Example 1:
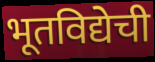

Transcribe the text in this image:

भूतविद्येची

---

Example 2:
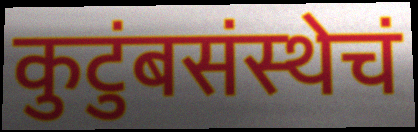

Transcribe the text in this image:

कुटुंबसंस्थेचं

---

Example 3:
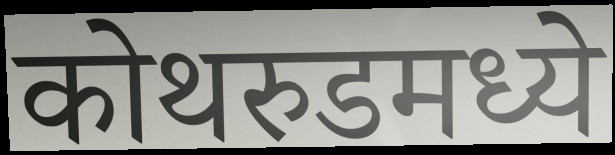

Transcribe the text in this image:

कोथरुडमध्ये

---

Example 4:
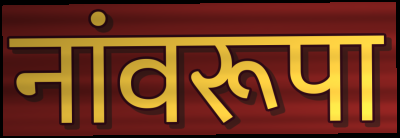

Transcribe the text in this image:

नांवरूपा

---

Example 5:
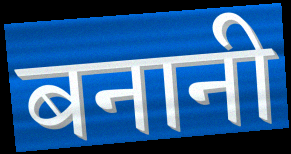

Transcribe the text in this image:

बनानी